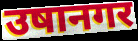
उषानगर